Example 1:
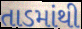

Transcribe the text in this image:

તાડમાંથી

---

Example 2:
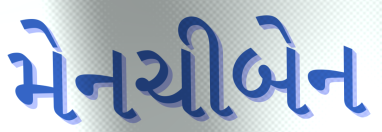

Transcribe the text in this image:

મેનચીબેન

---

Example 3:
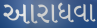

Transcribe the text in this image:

આરાધવા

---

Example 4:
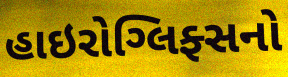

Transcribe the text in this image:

હાઇરોગ્લિફ્સનો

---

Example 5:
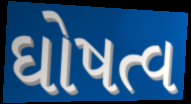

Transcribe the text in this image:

ઘોષત્વ